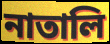
নাতালি